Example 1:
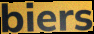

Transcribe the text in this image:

biers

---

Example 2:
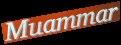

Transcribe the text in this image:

Muammar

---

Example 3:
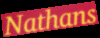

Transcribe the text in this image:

Nathans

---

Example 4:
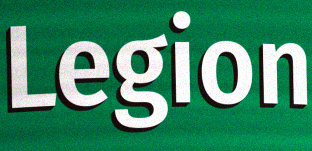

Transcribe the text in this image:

Legion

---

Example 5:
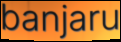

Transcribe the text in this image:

banjaru